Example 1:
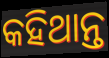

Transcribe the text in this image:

କହିଥାନ୍ତ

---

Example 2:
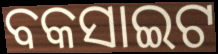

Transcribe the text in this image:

ବକସାଇଟ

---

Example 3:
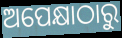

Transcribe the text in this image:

ଅପେକ୍ଷାଠାରୁ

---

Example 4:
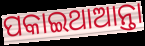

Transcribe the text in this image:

ପକାଇଥାଆନ୍ତା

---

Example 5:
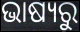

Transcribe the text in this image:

ଭାଷ୍ୟରୁ